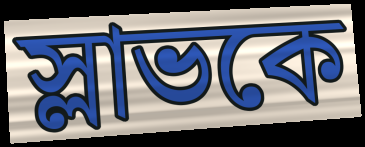
স্লাভকে